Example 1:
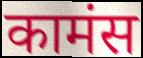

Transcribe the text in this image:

कामंस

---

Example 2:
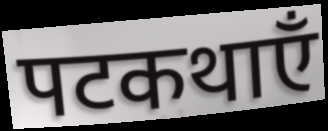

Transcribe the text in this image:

पटकथाएँ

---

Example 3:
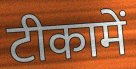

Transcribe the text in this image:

टीकामें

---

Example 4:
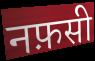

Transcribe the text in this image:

नफ़सी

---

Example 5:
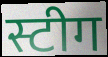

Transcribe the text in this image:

स्टीग